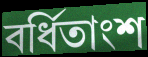
বর্ধিতাংশ